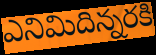
ఎనిమిదిన్నరకి